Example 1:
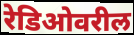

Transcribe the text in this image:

रेडिओवरील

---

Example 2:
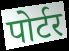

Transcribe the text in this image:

पोर्टर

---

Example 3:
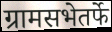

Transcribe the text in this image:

ग्रामसभेतर्फे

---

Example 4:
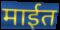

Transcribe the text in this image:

माईत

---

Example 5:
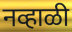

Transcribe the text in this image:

नव्हाळी